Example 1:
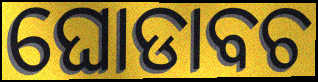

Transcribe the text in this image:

ଘୋଡାବଚ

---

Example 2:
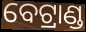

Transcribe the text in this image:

ବେଟ୍ରାଣ୍ଡ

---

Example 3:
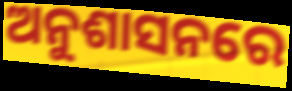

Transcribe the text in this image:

ଅନୁଶାସନରେ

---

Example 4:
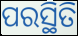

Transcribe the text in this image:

ପରସ୍ଥିତି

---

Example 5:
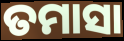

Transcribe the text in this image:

ତମାସା